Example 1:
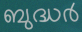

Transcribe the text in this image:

ബുദ്ധർ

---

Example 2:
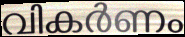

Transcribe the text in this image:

വികർണം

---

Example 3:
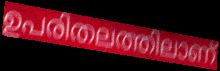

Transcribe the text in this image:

ഉപരിതലത്തിലാണ്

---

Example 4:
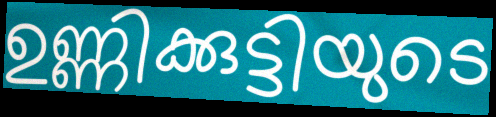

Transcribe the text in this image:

ഉണ്ണിക്കുട്ടിയുടെ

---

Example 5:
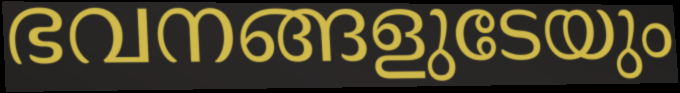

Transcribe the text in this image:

ഭവനങ്ങളുടേയും